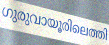
ഗുരുവായൂരിലെത്തി